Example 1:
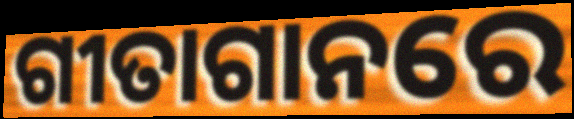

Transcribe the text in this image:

ଗୀତାଗାନରେ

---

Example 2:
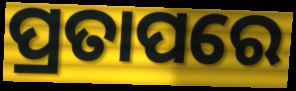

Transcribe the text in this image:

ପ୍ରତାପରେ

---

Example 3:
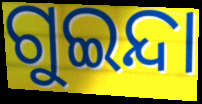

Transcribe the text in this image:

ଗୁଇନ୍ଦା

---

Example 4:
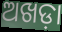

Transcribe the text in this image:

ଅଖଡ଼ା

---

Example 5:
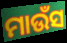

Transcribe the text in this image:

ମାଉଁସ